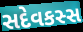
સદેવકસ્સ